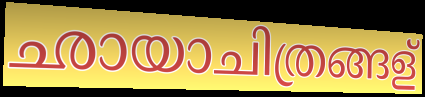
ഛായാചിത്രങ്ങള്